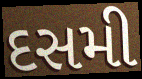
દસમી